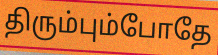
திரும்பும்போதே